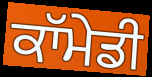
ਕਾੱਮੇਡੀ